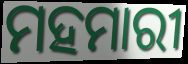
ମହମାରୀ